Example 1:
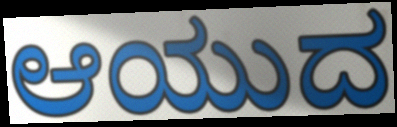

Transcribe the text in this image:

ಆಯುದ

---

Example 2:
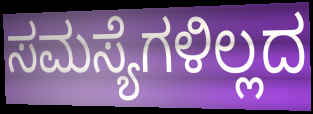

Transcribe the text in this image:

ಸಮಸ್ಯೆಗಳಿಲ್ಲದ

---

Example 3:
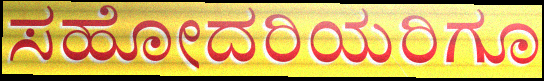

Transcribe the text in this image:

ಸಹೋದರಿಯರಿಗೂ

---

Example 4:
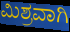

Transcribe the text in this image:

ಮಿಶ್ರವಾಗಿ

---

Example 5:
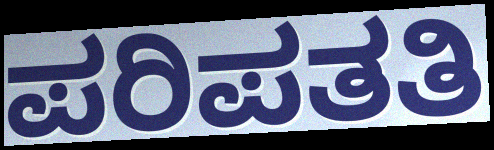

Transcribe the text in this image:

ಪರಿಪತತಿ